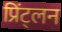
प्रिंट्लन